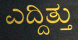
ಎದ್ದಿತ್ತು